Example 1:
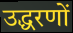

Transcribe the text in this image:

उद्धरणों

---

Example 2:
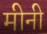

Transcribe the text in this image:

मीनी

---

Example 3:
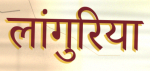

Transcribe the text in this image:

लांगुरिया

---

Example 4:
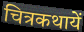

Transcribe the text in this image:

चित्रकथायें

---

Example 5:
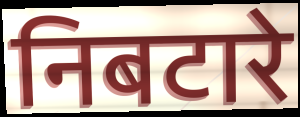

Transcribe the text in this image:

निबटारे